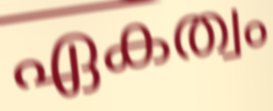
ഏകത്വം